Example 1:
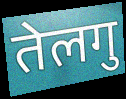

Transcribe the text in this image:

तेलगु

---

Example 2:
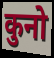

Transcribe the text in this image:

कुनो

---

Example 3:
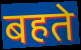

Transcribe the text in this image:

बहते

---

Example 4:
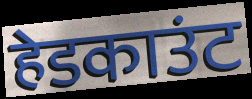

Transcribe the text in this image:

हेडकाउंट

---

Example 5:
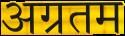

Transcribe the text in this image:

अग्रतम